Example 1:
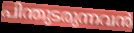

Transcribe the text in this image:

പിന്തുടരുന്നവൻ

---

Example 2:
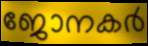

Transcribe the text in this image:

ജോനകർ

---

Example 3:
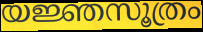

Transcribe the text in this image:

യജ്ഞസൂത്രം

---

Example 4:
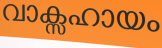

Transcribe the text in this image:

വാക്സഹായം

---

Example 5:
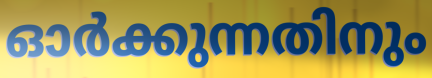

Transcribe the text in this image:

ഓർക്കുന്നതിനും